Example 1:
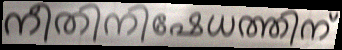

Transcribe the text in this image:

നീതിനിഷേധത്തിന്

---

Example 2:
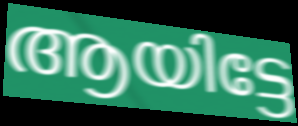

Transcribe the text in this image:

ആയിട്ടേ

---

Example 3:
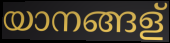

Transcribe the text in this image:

യാനങ്ങള്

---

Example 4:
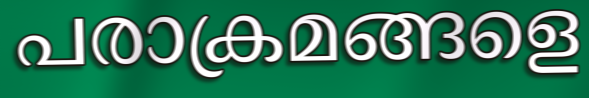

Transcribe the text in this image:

പരാക്രമങ്ങളെ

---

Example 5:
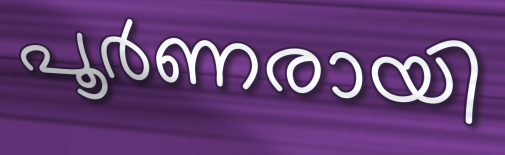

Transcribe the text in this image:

പൂർണരായി